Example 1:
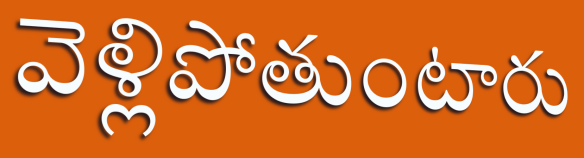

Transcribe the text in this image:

వెళ్లిపోతుంటారు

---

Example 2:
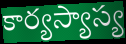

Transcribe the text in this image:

కార్యస్యాస్య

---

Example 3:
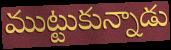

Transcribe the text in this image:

ముట్టుకున్నాడు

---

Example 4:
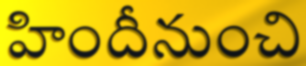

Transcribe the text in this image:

హిందీనుంచి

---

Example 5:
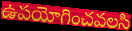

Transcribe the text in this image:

ఉపయోగించవలసి